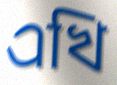
এখি